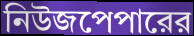
নিউজপেপারের